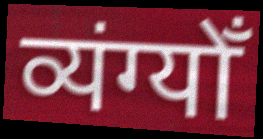
व्यंग्योँ